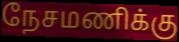
நேசமணிக்கு